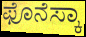
ಫೊನೆಸ್ಕಾ